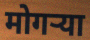
मोगऱ्या